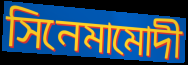
সিনেমামোদী